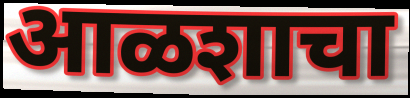
आळशाचा